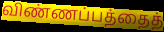
விண்ணப்பத்தைத்